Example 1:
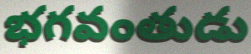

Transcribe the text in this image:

భగవంతుడు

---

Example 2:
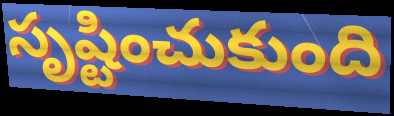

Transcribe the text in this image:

సృష్టించుకుంది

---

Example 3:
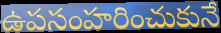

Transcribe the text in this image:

ఉపసంహరించుకునే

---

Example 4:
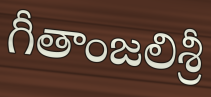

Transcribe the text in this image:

గీతాంజలిశ్రీ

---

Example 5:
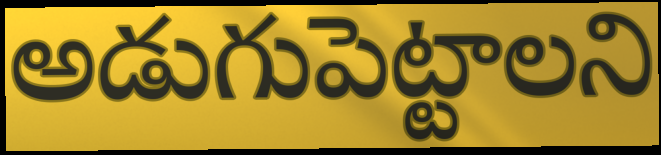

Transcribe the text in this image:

అడుగుపెట్టాలని